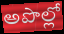
అపొల్లో